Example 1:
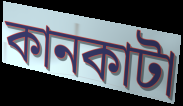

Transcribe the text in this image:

কানকাটা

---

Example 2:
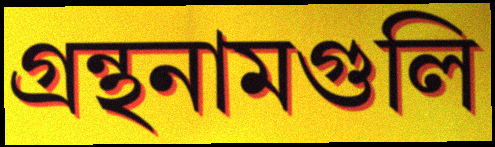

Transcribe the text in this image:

গ্রন্থনামগুলি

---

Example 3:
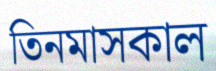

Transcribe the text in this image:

তিনমাসকাল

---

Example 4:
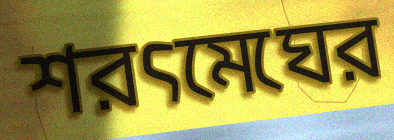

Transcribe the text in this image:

শরৎমেঘের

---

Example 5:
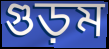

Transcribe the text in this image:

গুড়ম